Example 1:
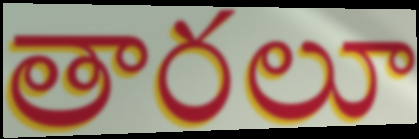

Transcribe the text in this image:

తారలూ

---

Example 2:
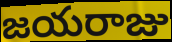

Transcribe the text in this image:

జయరాజు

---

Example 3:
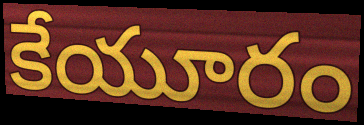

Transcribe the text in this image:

కేయూరం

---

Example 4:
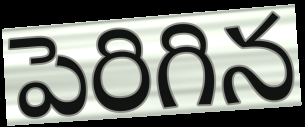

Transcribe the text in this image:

పెరిగిన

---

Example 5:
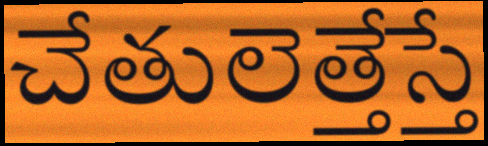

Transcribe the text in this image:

చేతులెత్తేస్తే